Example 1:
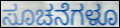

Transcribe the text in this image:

ಸೂಚನೆಗಳೂ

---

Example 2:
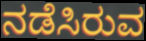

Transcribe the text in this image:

ನಡೆಸಿರುವ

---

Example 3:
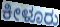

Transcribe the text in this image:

ಕೀಳೂರು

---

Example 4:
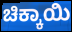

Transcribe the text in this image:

ಚಿಕ್ಕಾಯಿ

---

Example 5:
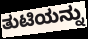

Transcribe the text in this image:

ತುಟಿಯನ್ನು